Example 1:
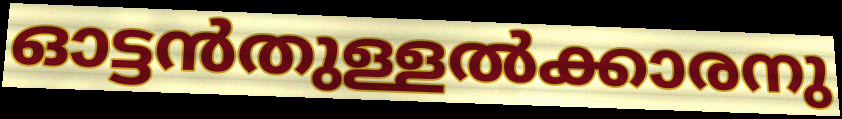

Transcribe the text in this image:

ഓട്ടൻതുള്ളൽക്കാരനു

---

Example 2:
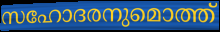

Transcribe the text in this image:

സഹോദരനുമൊത്ത്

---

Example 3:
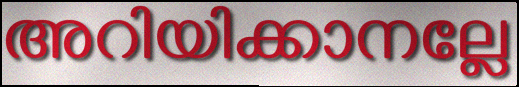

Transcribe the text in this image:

അറിയിക്കാനല്ലേ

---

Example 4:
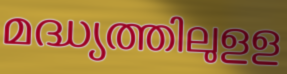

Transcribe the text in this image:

മദ്ധ്യത്തിലുളള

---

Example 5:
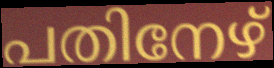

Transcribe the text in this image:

പതിനേഴ്